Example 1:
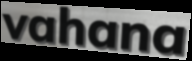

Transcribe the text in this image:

vahana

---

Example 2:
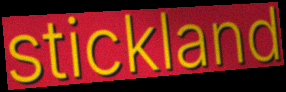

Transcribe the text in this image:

stickland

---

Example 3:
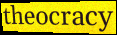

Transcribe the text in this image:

theocracy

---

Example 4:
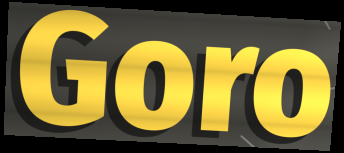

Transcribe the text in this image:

Goro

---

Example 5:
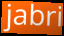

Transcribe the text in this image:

jabri